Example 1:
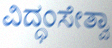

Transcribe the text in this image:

ವಿದ್ಧಂಸೇತ್ವಾ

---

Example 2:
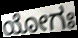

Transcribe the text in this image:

ಯೋಗಃ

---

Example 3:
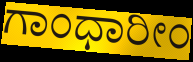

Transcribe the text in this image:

ಗಾಂಧಾರೀಂ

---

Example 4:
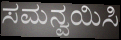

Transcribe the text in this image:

ಸಮನ್ವಯಿಸಿ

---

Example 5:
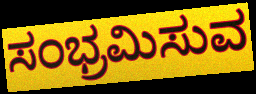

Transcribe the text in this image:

ಸಂಭ್ರಮಿಸುವ